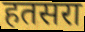
हतसरा